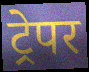
ट्रेपर